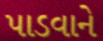
પાડવાને